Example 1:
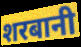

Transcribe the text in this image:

शरबानी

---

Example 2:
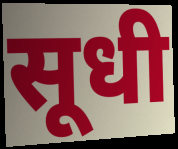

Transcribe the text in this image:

सूधी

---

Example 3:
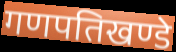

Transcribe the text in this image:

गणपतिखण्डे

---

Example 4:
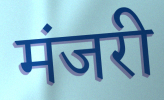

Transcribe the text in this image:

मंजरी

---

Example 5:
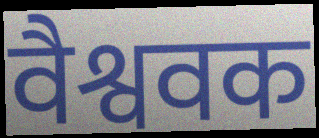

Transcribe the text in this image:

वैश्ववक